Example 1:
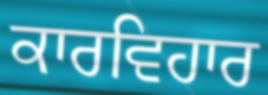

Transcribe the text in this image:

ਕਾਰਵਿਹਾਰ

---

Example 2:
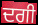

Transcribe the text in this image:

ਦਗੀ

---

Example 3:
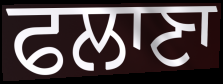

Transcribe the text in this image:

ਫਲਾਣਾ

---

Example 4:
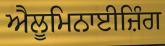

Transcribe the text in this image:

ਐਲੂਮਿਨਾਈਜ਼ਿੰਗ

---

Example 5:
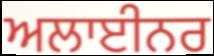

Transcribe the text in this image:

ਅਲਾਈਨਰ